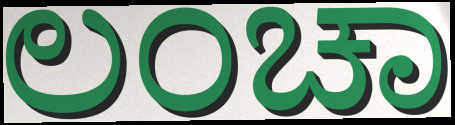
ಲಂಚಾ